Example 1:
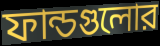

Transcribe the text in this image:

ফান্ডগুলোর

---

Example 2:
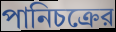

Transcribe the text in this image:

পানিচক্রের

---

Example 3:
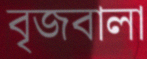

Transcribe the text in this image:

বৃজবালা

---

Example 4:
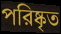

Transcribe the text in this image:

পরিষ্কৃত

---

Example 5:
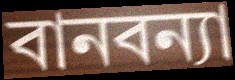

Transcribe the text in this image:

বানবন্যা